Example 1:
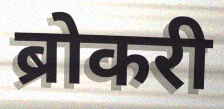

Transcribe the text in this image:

ब्रोकरी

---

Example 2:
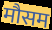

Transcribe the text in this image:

मौसम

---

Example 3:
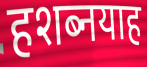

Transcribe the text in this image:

हशब्नयाह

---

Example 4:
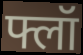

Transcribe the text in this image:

फ्लॉ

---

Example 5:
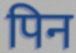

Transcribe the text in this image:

पिन